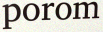
porom